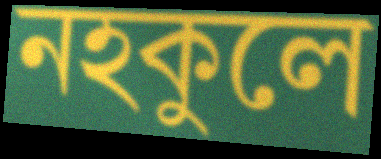
নহকুলে